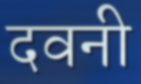
दवनी